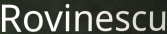
Rovinescu